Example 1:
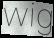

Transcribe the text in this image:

wig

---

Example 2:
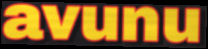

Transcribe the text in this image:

avunu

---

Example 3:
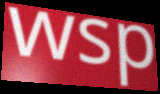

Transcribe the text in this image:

wsp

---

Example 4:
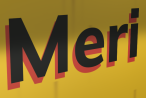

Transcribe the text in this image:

Meri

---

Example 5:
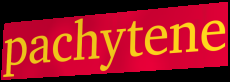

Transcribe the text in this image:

pachytene